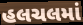
હલચલમાં